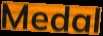
Medal